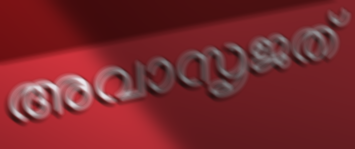
അവാസൃജത്